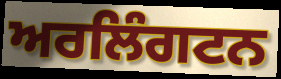
ਅਰਲਿੰਗਟਨ